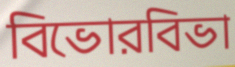
বিভোরবিভা